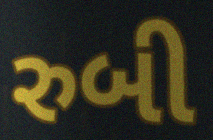
રુબી